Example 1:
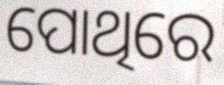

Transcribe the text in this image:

ପୋଥିରେ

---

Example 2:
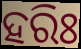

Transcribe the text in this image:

ହରିଃ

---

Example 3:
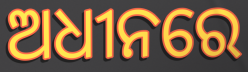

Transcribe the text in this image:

ଅଧୀନରେ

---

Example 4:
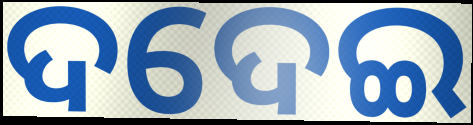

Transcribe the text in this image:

ଦଦେଇ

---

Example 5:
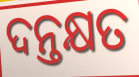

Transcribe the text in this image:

ଦନ୍ତକ୍ଷତ